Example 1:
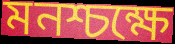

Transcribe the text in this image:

মনশ্চক্ষে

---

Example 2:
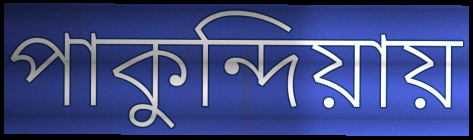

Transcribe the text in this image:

পাকুন্দিয়ায়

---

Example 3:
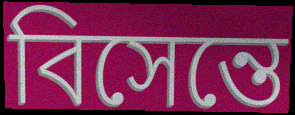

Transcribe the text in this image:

বিসেন্তে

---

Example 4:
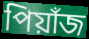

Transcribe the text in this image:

পিয়াঁজ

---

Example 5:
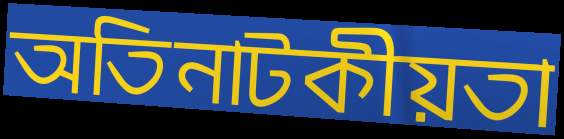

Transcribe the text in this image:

অতিনাটকীয়তা